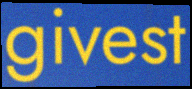
givest